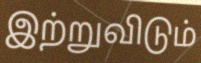
இற்றுவிடும்